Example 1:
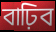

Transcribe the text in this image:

বাঢ়িব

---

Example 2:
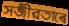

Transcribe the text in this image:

সজীৱতাৰে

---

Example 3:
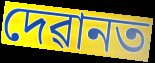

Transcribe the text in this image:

দেৱানত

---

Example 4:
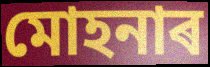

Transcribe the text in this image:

মোহনাৰ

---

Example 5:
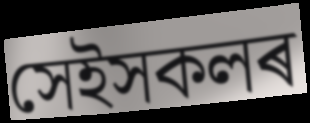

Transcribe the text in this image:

সেইসকলৰ